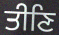
ਤੀਣਿ